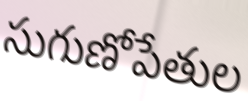
సుగుణోపేతుల